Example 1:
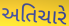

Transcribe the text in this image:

અતિચારે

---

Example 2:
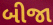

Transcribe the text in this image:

બીજા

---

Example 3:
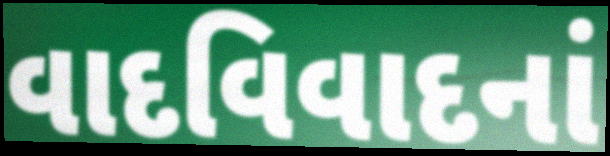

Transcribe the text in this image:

વાદવિવાદનાં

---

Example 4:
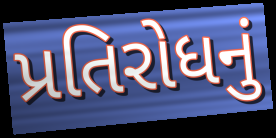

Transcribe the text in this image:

પ્રતિરોધનું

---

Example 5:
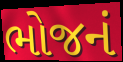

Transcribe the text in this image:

ભોજનં